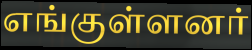
எங்குள்ளனர்